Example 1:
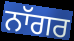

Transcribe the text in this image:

ਨਾੱਗਰ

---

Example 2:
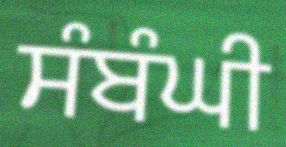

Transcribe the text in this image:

ਸੰਬੰਘੀ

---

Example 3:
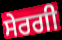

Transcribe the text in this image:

ਸੇਰਗੀ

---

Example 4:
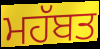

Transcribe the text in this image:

ਮਹੱਬਤ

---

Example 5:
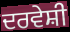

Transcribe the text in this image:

ਦਰਵੇਸ਼ੀ